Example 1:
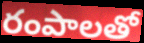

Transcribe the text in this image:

రంపాలతో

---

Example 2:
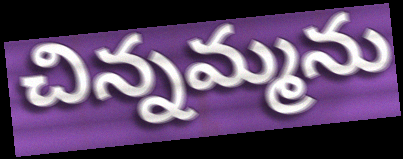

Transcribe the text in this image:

చిన్నమ్మను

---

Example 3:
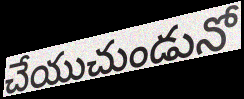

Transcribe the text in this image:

చేయుచుండునో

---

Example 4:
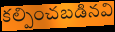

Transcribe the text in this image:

కల్పించబడినవి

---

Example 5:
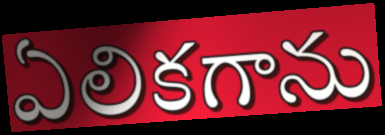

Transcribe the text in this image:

ఏలికగాను